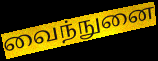
வைந்நுனை